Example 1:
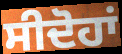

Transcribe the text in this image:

ਸੀਦੋਹਾਂ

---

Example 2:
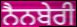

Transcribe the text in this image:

ਨੈਨਬੇਰੀ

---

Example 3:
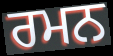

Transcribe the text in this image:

ਰਮਨ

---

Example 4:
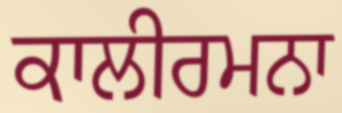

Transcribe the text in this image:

ਕਾਲੀਰਮਨਾ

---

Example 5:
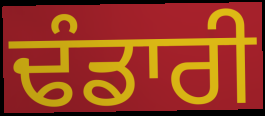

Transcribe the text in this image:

ਢੰਡਾਰੀ